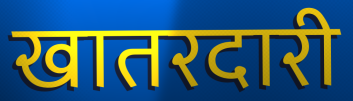
खातरदारी